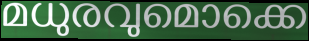
മധുരവുമൊക്കെ